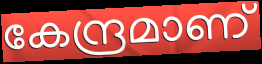
കേന്ദ്രമാണ്